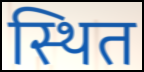
स्थित